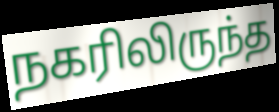
நகரிலிருந்த